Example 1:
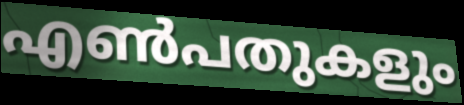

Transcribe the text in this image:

എൺപതുകളും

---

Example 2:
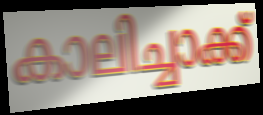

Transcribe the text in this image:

കാലിച്ചാക്ക്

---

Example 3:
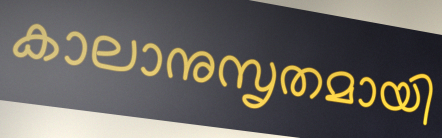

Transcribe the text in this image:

കാലാനുസൃതമായി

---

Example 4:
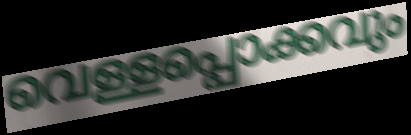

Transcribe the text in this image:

വെള്ളപ്പൊക്കവും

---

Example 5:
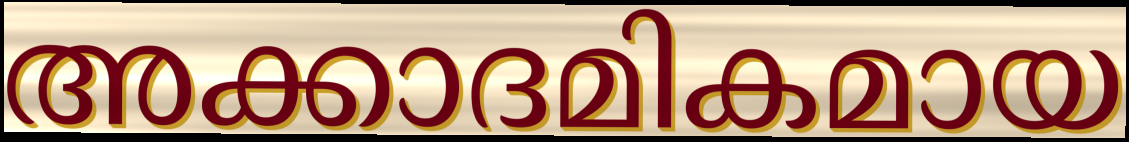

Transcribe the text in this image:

അക്കാദമികമായ